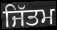
ਜਿੱਤਮ